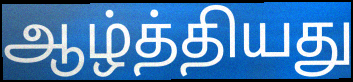
ஆழ்த்தியது